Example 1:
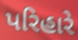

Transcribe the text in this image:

પરિહારે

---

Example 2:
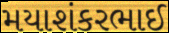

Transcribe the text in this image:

મયાશંકરભાઈ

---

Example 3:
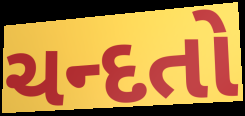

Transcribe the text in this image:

ચન્દતો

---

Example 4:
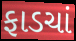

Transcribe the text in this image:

ફાડચાં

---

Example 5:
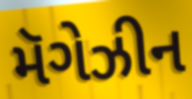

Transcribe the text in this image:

મૅગેઝીન